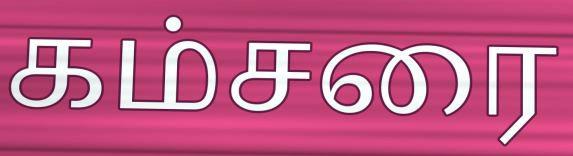
கம்சரை